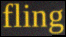
fling